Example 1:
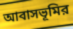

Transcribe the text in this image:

আবাসভূমির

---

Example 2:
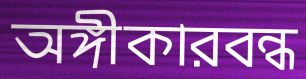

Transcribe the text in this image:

অঙ্গীকারবন্ধ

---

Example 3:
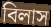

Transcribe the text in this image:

বিলাস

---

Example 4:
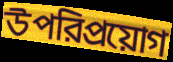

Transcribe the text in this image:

উপরিপ্রয়োগ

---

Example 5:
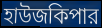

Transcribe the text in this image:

হাউজকিপার